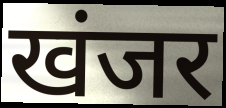
खंजर